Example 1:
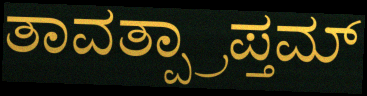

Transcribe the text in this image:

ತಾವತ್ಪ್ರಾಪ್ತಮ್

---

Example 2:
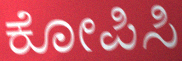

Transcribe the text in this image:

ಕೋಪಿಸಿ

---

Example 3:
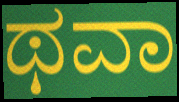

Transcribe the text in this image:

ಥವಾ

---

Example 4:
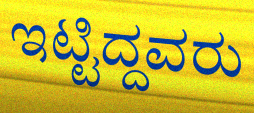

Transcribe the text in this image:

ಇಟ್ಟಿದ್ದವರು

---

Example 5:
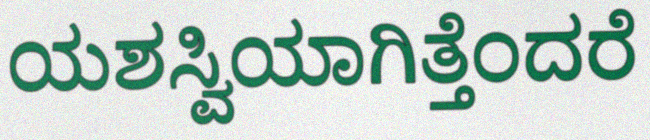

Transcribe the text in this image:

ಯಶಸ್ವಿಯಾಗಿತ್ತೆಂದರೆ